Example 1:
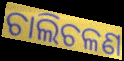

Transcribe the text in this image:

ଚାଲିଚଳଣ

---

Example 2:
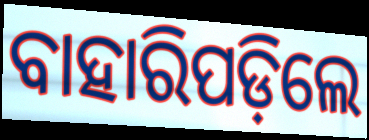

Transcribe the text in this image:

ବାହାରିପଡ଼ିଲେ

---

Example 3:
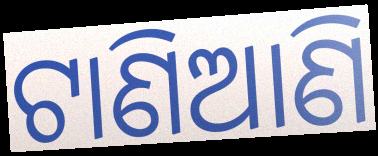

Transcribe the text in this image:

ଟାଣିଆଣି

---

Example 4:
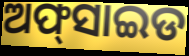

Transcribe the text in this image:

ଅଫ୍‍ସାଇଡ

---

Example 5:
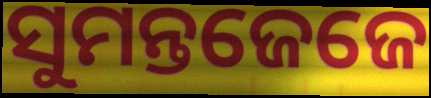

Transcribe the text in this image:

ସୁମନ୍ତଜେଜେ